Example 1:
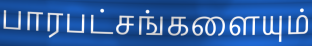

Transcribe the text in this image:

பாரபட்சங்களையும்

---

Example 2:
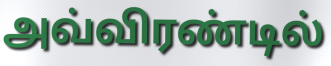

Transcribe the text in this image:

அவ்விரண்டில்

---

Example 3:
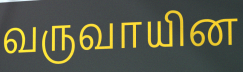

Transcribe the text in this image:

வருவாயின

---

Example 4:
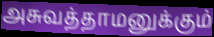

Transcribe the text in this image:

அசுவத்தாமனுக்கும்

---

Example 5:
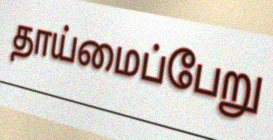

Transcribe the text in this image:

தாய்மைப்பேறு